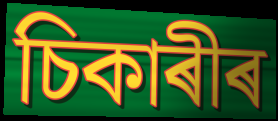
চিকাৰীৰ